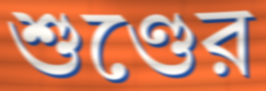
শুণ্ডের